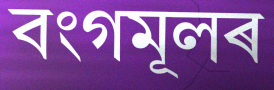
বংগমূলৰ